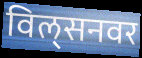
विल्सनवर